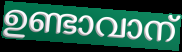
ഉണ്ടാവാന്